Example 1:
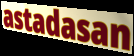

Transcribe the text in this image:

astadasan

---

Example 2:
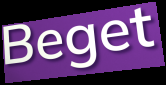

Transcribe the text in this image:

Beget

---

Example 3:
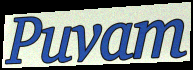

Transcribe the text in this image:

Puvam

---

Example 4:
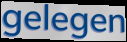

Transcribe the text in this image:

gelegen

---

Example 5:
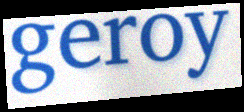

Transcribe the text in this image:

geroy